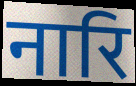
नारि